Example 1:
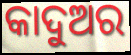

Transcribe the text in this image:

କାଦୁଅର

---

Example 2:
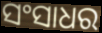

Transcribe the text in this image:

ସଂସାଧର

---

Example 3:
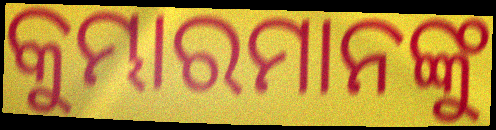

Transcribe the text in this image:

କୁମ୍ଭାରମାନଙ୍କୁ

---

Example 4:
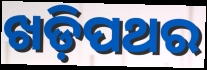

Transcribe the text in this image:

ଖଡ଼ିପଥର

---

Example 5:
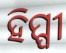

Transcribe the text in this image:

ହିପ୍ପୀ